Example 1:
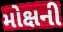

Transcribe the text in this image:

મોક્ષની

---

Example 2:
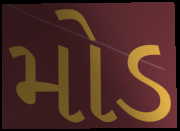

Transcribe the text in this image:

મોડ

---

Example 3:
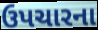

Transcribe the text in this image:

ઉપચારના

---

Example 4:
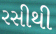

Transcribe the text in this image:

રસીથી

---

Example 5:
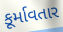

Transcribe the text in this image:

કૂર્માવતાર